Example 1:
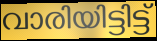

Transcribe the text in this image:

വാരിയിട്ടിട്ട്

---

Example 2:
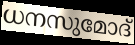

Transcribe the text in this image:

ധനസുമോദ്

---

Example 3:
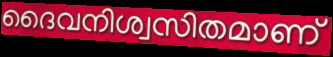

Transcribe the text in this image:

ദൈവനിശ്വസിതമാണ്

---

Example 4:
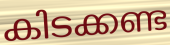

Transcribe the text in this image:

കിടക്കണ്ട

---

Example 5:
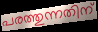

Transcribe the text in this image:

പരത്തുന്നതിന്